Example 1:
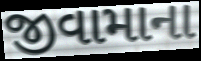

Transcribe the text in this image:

જીવામાના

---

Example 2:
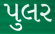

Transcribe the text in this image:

પુલર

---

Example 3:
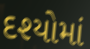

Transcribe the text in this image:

દશ્યોમાં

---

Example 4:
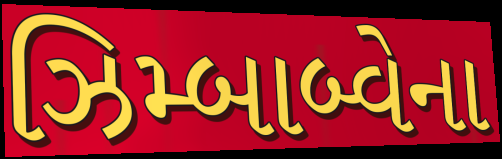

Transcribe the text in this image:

ઝિમ્બાબ્વેના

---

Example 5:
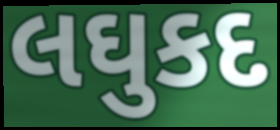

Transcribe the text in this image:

લઘુકદ